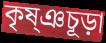
কৃষ্ঞচূড়া